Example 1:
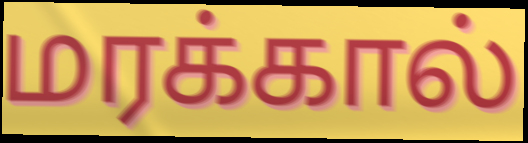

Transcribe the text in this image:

மரக்கால்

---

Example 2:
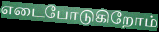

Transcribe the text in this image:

எடைபோடுகிறோம்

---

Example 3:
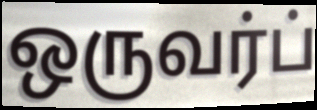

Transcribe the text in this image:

ஒருவர்ப்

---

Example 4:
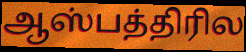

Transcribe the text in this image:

ஆஸ்பத்திரில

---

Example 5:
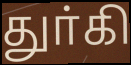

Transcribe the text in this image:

துர்கி